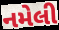
નમેલી